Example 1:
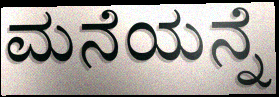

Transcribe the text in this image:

ಮನೆಯನ್ನೆ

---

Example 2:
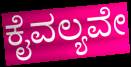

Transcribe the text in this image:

ಕೈವಲ್ಯವೇ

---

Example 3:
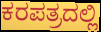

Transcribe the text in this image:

ಕರಪತ್ರದಲ್ಲಿ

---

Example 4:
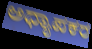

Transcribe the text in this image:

ಅಧ್ಯಾಪಕರ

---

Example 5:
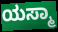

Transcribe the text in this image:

ಯಸ್ಮಾ